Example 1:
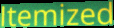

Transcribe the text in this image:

Itemized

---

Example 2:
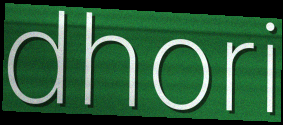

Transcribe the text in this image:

dhori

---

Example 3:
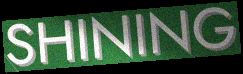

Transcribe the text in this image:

SHINING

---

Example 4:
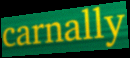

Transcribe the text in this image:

carnally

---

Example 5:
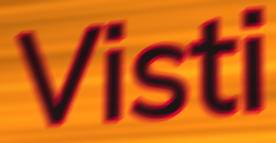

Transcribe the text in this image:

Visti